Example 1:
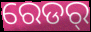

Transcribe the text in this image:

ରେଡର୍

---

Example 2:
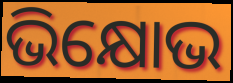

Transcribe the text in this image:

ଭିକ୍ଷୋଭ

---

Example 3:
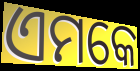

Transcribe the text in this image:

ଏମକେ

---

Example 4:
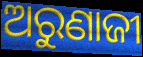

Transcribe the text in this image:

ଅରୁଣାଜୀ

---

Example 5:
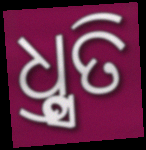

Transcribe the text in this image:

ଧ୍ତ୍ସତି